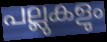
പല്ലുകളും